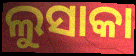
ଲୁସାକା